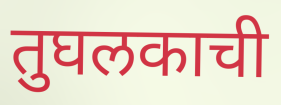
तुघलकाची